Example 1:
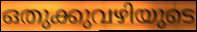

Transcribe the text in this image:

ഒതുക്കുവഴിയുടെ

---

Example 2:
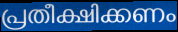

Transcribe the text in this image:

പ്രതീക്ഷിക്കണം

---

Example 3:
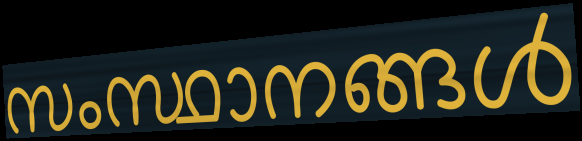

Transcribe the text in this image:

സംസ്ഥാനങ്ങൾ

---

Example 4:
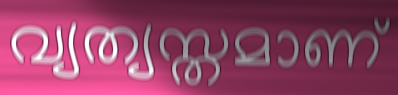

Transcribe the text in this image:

വ്യത്യസ്തമാണ്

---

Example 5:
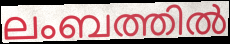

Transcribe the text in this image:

ലംബത്തിൽ